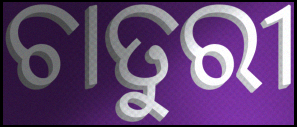
ଚାତୁରୀ